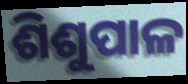
ଶିଶୁପାଳ